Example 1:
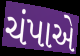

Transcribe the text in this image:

ચંપાએ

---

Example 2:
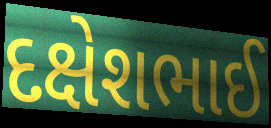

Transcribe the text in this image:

દક્ષેશભાઈ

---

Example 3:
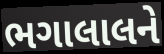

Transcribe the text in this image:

ભગાલાલને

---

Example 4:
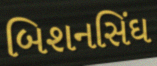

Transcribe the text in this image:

બિશનસિંઘ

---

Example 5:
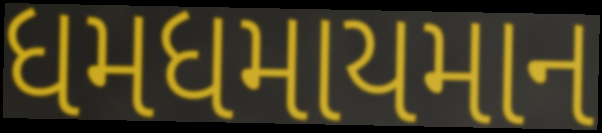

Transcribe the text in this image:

ધમધમાયમાન